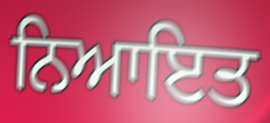
ਨਿਆਇਤ